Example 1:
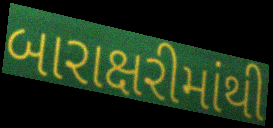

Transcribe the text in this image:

બારાક્ષરીમાંથી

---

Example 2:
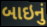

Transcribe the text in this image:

બાઇનું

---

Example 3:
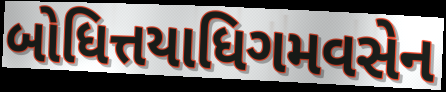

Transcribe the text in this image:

બોધિત્તયાધિગમવસેન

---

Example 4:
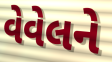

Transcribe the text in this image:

વેવેલને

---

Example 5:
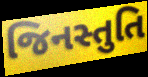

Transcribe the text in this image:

જિનસ્તુતિ